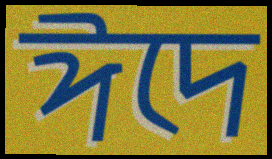
ঈদে